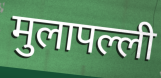
मुलापल्ली